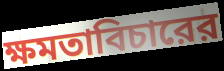
ক্ষমতাবিচারের